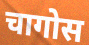
चागोस